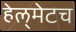
हेल्मेटच